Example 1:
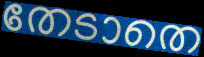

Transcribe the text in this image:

തേടാതെ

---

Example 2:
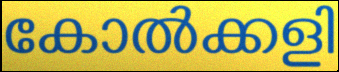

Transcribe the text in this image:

കോൽക്കളി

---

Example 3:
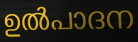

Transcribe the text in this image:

ഉൽപാദന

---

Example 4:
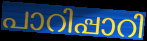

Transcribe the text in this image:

പാറിപ്പാറി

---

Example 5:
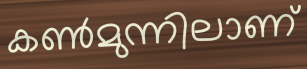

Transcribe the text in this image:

കൺമുന്നിലാണ്